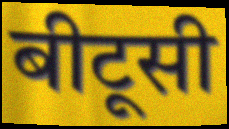
बीटूसी